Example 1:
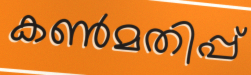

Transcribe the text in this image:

കൺമതിപ്പ്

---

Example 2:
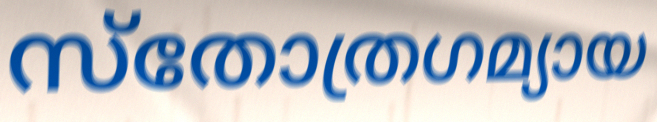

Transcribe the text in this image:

സ്തോത്രഗമ്യായ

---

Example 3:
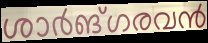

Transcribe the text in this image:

ശാർങ്ഗരവൻ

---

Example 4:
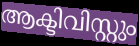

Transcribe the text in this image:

ആക്ടിവിസ്റ്റും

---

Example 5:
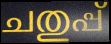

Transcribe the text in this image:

ചതുപ്പ്